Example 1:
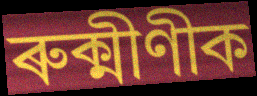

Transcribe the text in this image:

ৰুক্মীণীক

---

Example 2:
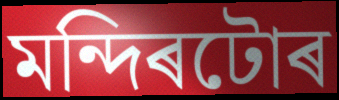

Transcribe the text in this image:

মন্দিৰটোৰ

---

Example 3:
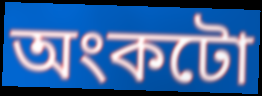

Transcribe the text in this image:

অংকটো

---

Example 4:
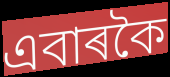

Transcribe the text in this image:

এবাৰকৈ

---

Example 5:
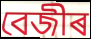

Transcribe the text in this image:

বেজীৰ